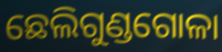
ଛେଲିଗୁଣ୍ଡଗୋଳା